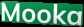
Mooka